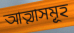
আত্মাসমূহ